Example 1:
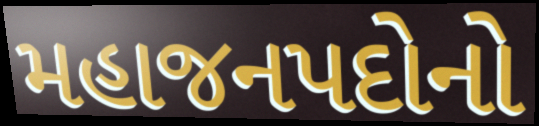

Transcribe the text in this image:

મહાજનપદોનો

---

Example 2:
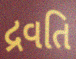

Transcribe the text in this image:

દ્રવતિ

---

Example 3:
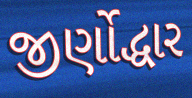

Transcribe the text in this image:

જીર્ણોદ્ધાર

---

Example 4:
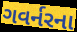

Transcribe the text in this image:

ગવર્નરના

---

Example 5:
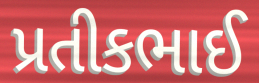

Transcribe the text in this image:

પ્રતીકભાઈ